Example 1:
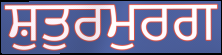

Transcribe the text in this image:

ਸ਼ੁਤੁਰਮੁਰਗ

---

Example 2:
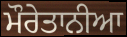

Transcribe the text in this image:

ਮੌਰੇਤਾਨੀਆ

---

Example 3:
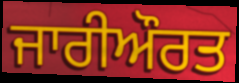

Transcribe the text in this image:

ਜਾਰੀਔਰਤ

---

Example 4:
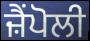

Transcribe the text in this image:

ਜ਼ੈਂਪੋਲੀ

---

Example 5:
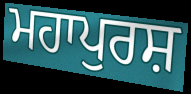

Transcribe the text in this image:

ਮਹਾਪੁਰਸ਼